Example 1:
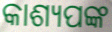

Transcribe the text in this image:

କାଶ୍ୟପଙ୍କ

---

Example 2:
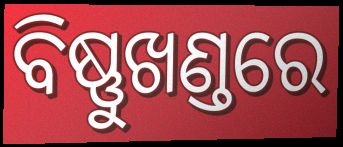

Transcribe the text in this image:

ବିଷ୍ଣୁଖଣ୍ଡରେ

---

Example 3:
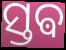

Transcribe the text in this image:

ସ୍ତଵ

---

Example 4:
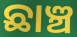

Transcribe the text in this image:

ଛାଞ୍ଚ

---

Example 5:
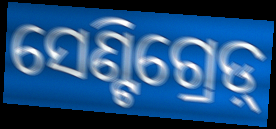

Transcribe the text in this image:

ସେଣ୍ଟିଗ୍ରେଡ଼୍